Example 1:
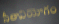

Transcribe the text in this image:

సీతావియోగం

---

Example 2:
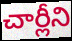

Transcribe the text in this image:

చార్లీని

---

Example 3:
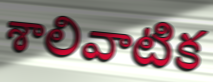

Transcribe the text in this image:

శాలివాటిక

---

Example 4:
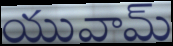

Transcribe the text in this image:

యువామ్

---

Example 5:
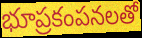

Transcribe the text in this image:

భూప్రకంపనలతో